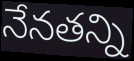
నేనతన్ని